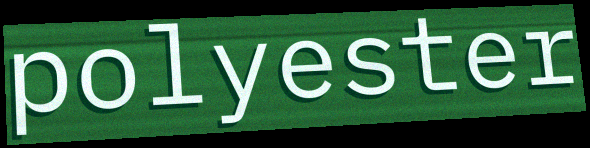
polyester